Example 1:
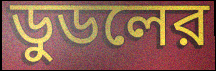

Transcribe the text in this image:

ডুডলের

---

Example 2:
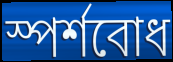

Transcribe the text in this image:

স্পর্শবোধ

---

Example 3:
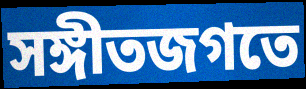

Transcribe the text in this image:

সঙ্গীতজগতে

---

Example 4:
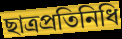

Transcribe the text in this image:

ছাত্রপ্রতিনিধি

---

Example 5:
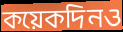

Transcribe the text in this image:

কয়েকদিনও